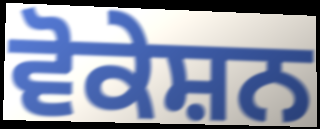
ਵੋਕੇਸ਼ਨ